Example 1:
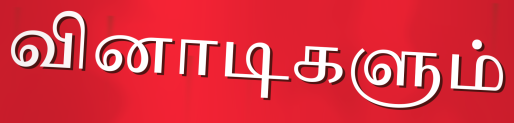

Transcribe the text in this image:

வினாடிகளும்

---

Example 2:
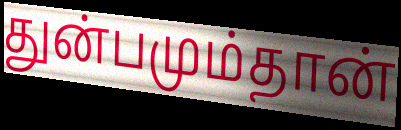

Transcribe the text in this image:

துன்பமும்தான்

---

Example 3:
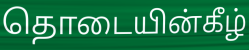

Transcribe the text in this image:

தொடையின்கீழ்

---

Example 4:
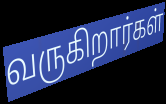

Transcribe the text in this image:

வருகிறார்கள்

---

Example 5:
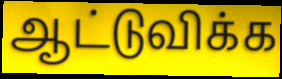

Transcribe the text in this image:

ஆட்டுவிக்க